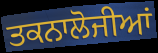
ਤਕਨਾਲੋਜੀਆਂ